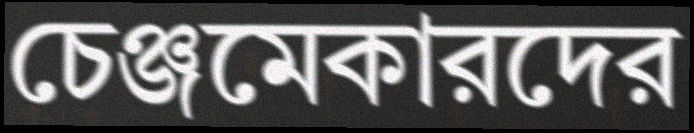
চেঞ্জমেকারদের